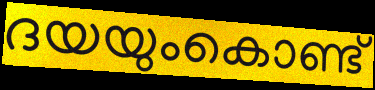
ദയയുംകൊണ്ട്